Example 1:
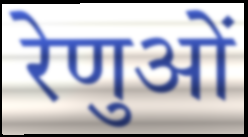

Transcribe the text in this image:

रेणुओं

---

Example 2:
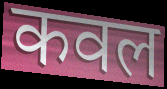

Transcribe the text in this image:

कवल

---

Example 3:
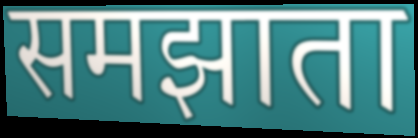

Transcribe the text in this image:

समझाता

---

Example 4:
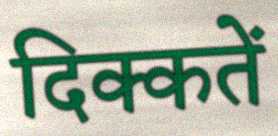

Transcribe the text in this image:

दिक्कतें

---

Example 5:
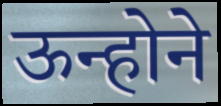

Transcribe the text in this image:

ऊन्होने